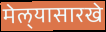
मेल्यासारखे